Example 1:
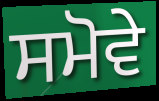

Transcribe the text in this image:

ਸਮੋਵੇ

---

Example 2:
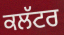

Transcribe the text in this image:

ਕਲੱਟਰ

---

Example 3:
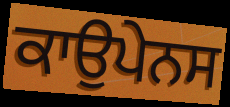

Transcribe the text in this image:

ਕਾਉਪੇਨਸ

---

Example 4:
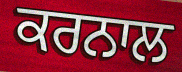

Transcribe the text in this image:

ਕਰਨਾਲ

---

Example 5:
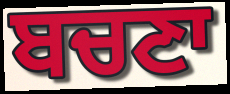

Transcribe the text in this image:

ਬਚਣਾ